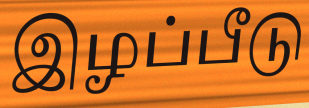
இழப்பீடு